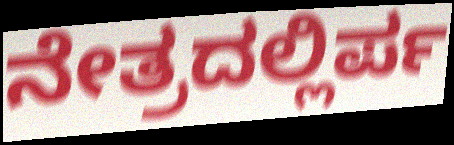
ನೇತ್ರದಲ್ಲಿರ್ಪ